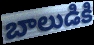
బాలుడికి